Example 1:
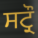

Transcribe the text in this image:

ਸਟ੍ਰੌ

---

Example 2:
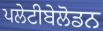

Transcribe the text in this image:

ਪਲੇਟੀਬੇਲੋਡਨ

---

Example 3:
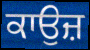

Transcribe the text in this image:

ਕਾਉਜ਼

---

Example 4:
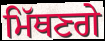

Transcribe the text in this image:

ਮਿੱਥਣਗੇ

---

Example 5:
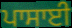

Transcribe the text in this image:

ਪਾਸਾਈ